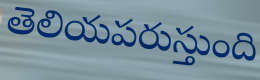
తెలియపరుస్తుంది